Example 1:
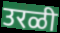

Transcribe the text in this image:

उरळी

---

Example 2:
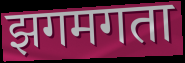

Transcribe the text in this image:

झगमगता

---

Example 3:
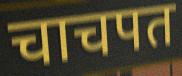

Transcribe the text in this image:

चाचपत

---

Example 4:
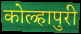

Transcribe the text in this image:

कोल्हापुरी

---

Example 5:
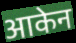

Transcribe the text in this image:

आकेन